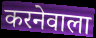
करनेवाला